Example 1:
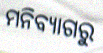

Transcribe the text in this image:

ମନିବ୍ୟାଗରୁ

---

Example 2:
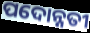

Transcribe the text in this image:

ପଦୋନ୍ନତୀ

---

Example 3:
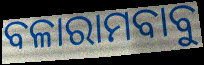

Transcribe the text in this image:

ବଳାରାମବାବୁ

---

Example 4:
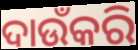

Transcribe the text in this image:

ଦାଉଁକରି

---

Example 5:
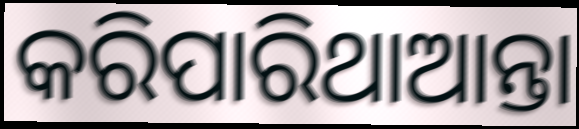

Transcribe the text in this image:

କରିପାରିଥାଆନ୍ତା